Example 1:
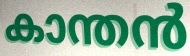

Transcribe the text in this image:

കാന്തൻ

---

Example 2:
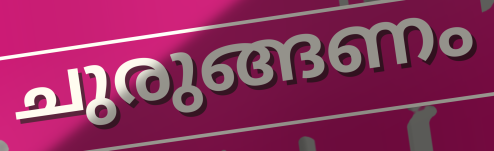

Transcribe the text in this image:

ചുരുങ്ങണം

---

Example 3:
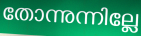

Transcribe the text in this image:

തോന്നുന്നില്ലേ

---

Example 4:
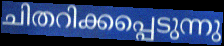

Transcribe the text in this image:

ചിതറിക്കപ്പെടുന്നു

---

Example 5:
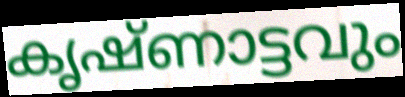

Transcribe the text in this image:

കൃഷ്ണാട്ടവും